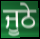
ਜੂਠੇ